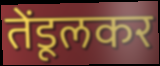
तेंडूलकर